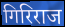
गिरिराज